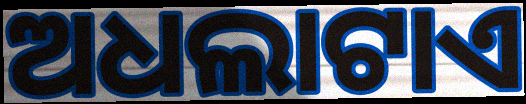
ଅଧଲାଟାଏ